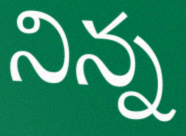
నిన్న